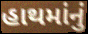
હાથમાંનું